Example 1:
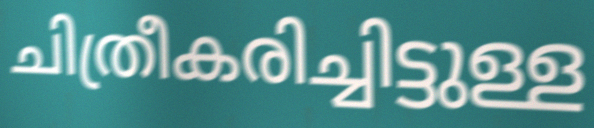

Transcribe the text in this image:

ചിത്രീകരിച്ചിട്ടുള്ള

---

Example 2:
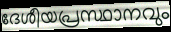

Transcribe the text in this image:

ദേശീയപ്രസ്ഥാനവും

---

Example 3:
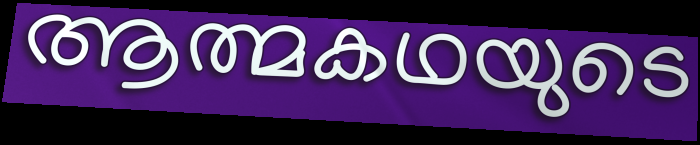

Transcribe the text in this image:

ആത്മകഥയുടെ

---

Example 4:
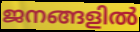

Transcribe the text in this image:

ജനങ്ങളിൽ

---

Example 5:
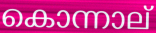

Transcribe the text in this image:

കൊന്നാല്